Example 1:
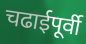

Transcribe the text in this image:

चढाईपूर्वी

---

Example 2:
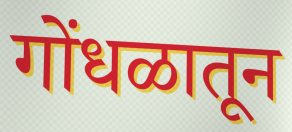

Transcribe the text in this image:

गोंधळातून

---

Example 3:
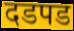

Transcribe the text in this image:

दडपड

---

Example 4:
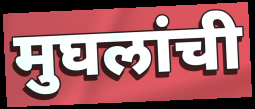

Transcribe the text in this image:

मुघलांची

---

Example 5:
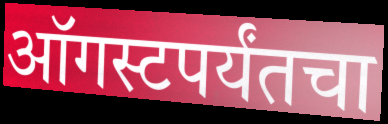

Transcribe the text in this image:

ऑगस्टपर्यंतचा